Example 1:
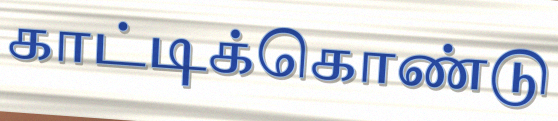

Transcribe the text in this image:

காட்டிக்கொண்டு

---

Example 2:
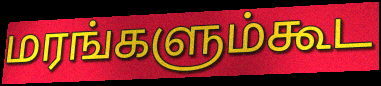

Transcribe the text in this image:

மரங்களும்கூட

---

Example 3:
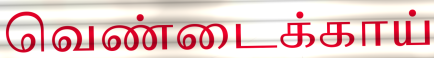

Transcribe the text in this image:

வெண்டைக்காய்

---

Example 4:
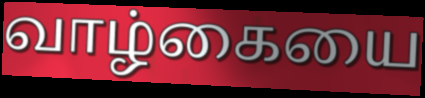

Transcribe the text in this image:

வாழ்கையை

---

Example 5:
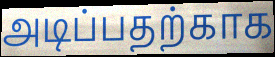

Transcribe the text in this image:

அடிப்பதற்காக